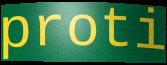
proti